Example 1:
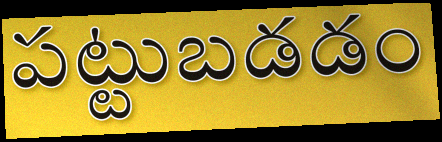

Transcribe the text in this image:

పట్టుబడడం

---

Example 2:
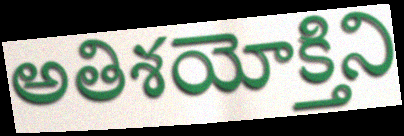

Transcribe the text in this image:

అతిశయోక్తిని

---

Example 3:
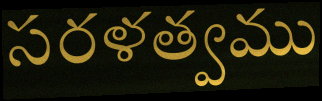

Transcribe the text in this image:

సరళత్వము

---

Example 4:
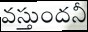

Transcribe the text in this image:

వస్తుందనీ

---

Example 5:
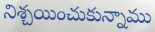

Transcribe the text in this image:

నిశ్చయించుకున్నాము